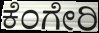
ಕೆಂಗೇರಿ